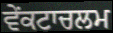
ਵੇਂਕਟਾਚਲਮ